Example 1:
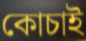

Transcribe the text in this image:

কোচাই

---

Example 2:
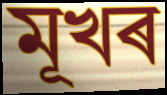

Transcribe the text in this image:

মূখৰ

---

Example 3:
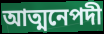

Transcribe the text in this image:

আত্মনেপদী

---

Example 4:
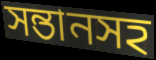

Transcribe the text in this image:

সন্তানসহ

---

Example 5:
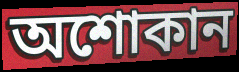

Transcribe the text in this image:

অশোকান